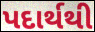
પદાર્થથી